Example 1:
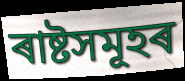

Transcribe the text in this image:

ৰাষ্টসমূহৰ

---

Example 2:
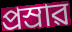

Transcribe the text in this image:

প্ৰস্ৰাৱ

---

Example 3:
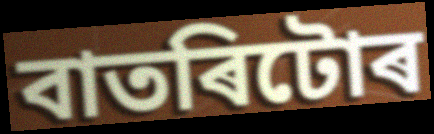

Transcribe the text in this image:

বাতৰিটোৰ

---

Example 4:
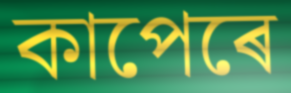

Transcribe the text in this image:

কাপেৰে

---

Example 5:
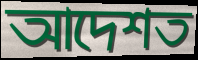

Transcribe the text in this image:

আদেশত